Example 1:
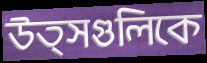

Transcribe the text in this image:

উত্সগুলিকে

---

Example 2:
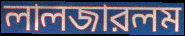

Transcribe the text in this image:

লালজারলম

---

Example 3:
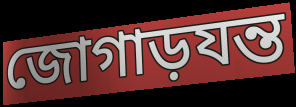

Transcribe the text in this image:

জোগাড়যন্ত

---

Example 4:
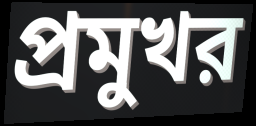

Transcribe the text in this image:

প্রমুখর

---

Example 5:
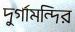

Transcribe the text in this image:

দুর্গামন্দির